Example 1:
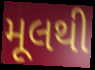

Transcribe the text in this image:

મૂલથી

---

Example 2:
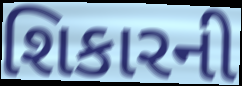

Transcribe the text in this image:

શિકારની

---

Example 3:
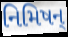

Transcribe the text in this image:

નિમિષન્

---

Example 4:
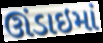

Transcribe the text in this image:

ઊંડાઇમાં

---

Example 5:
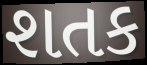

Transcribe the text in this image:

શતક